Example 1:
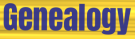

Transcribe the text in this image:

Genealogy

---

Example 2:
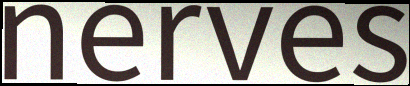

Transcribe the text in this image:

nerves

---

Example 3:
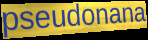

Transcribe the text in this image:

pseudonana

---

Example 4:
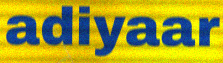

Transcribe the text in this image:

adiyaar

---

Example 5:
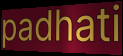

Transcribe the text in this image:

padhati